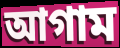
আগাম